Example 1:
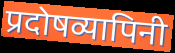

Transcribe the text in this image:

प्रदोषव्यापिनी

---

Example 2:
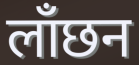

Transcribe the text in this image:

लाँछन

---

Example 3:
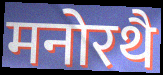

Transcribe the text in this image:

मनोरथै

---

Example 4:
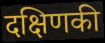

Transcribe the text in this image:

दक्षिणकी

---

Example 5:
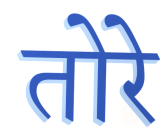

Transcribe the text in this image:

तोरे